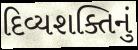
દિવ્યશક્તિનું